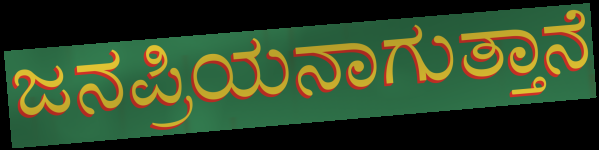
ಜನಪ್ರಿಯನಾಗುತ್ತಾನೆ